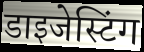
डाइजेस्टिंग